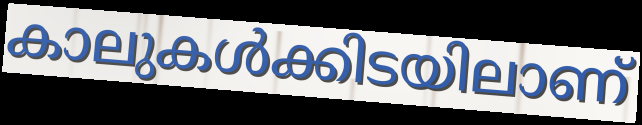
കാലുകൾക്കിടയിലാണ്